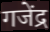
गजेंद्र